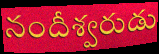
నందీశ్వరుడు